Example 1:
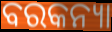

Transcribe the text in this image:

ବରକନ୍ୟା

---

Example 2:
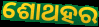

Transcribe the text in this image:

ଶୋଥହର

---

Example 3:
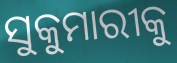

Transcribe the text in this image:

ସୁକୁମାରୀକୁ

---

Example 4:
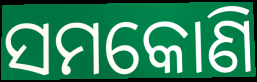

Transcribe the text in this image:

ସମକୋଣି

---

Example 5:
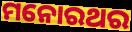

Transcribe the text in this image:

ମନୋରଥର